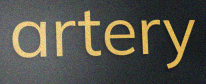
artery